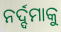
ନର୍ଦ୍ଦମାକୁ